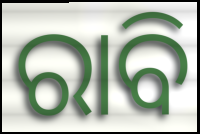
ରାବି